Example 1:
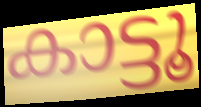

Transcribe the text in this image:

കാട്ടൂ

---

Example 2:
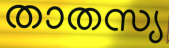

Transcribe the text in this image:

താതസ്യ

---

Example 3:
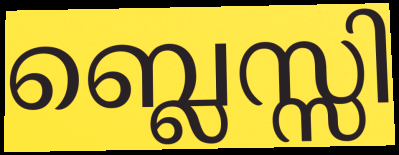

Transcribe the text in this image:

ബ്ലെസ്സി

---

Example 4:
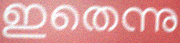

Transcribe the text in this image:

ഇതെന്നു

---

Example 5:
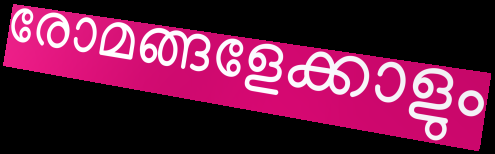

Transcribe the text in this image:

രോമങ്ങളേക്കാളും